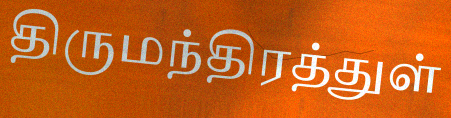
திருமந்திரத்துள்